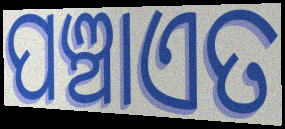
ପଞ୍ଚାଏତ